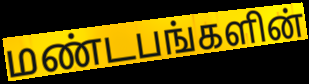
மண்டபங்களின்